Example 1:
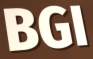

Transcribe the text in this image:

BGI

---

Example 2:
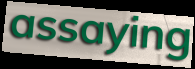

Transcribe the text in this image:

assaying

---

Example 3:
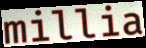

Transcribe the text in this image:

millia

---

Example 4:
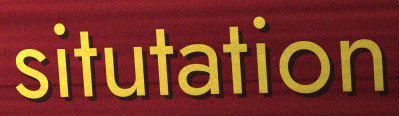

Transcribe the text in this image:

situtation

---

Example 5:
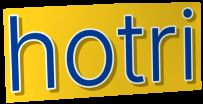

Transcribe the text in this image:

hotri